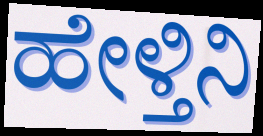
ಹೇಳ್ತಿನಿ